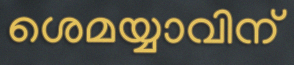
ശെമയ്യാവിന്